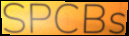
SPCBs